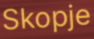
Skopje